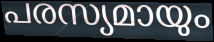
പരസ്യമായും